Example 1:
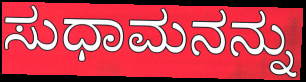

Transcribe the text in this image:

ಸುಧಾಮನನ್ನು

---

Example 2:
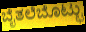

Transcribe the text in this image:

ಬೈತಲೆಬೊಟ್ಟು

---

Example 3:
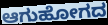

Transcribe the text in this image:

ಆಗುಹೋಗದ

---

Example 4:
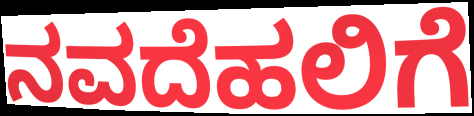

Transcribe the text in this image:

ನವದೆಹಲಿಗೆ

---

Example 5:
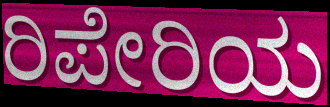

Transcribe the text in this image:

ರಿಪೇರಿಯ